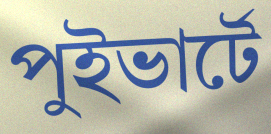
পুইভার্টে